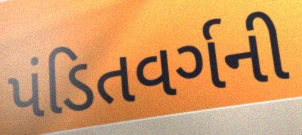
પંડિતવર્ગની